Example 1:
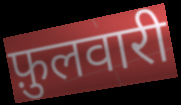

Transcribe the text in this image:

फ़ुलवारी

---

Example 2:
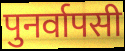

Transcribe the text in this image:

पुनर्वापसी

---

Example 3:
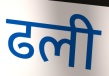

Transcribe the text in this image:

ढली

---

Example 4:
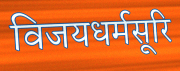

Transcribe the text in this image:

विजयधर्मसूरि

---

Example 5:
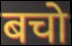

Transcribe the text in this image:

बचो